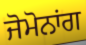
ਜੋਮੋਨਾਂਗ